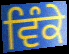
ਵਿੰਕੇ